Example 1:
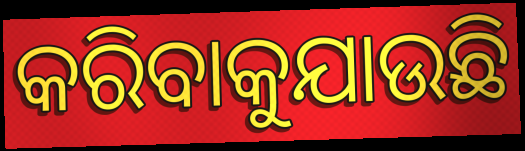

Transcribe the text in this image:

କରିବାକୁଯାଉଛି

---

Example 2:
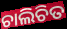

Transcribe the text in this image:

ଚାଲିଚିତ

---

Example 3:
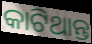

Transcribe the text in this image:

କାଟିଥାନ୍ତ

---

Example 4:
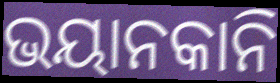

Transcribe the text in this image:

ଭୟାନକାନି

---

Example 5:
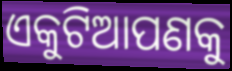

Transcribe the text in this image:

ଏକୁଟିଆପଣକୁ